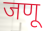
जणू